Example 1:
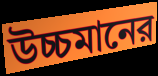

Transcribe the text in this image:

উচ্চমানের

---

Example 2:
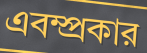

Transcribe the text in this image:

এবম্প্রকার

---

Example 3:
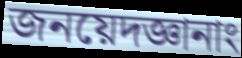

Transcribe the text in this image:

জনয়েদজ্ঞানাং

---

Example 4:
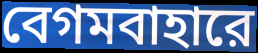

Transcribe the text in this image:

বেগমবাহারে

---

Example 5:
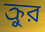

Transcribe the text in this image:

ক্রুর